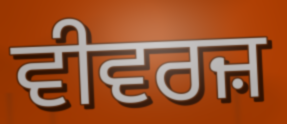
ਵੀਵਰਜ਼